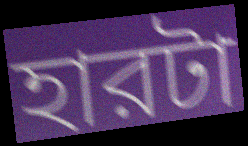
হারটা